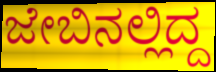
ಜೇಬಿನಲ್ಲಿದ್ದ